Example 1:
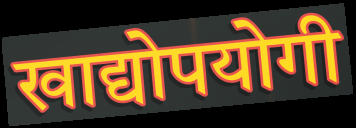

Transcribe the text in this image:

खाद्योपयोगी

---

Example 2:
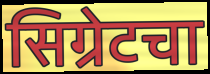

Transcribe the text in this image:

सिग्रेटचा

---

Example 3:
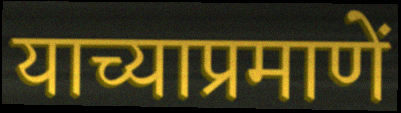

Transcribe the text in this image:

याच्याप्रमाणें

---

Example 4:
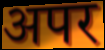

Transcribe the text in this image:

अपर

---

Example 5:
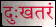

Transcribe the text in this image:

दुःखतरं